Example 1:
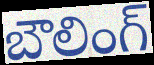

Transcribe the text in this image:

బౌలింగ్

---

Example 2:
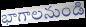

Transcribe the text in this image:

భాగాలనుండి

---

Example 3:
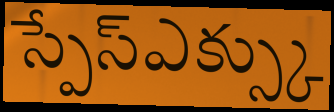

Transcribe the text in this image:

స్పేస్ఎక్స్కు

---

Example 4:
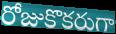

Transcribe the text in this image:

రోజుకొకరుగా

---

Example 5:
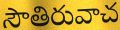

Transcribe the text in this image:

సౌతిరువాచ